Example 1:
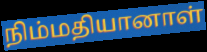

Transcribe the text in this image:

நிம்மதியானாள்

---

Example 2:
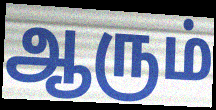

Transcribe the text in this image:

ஆரும்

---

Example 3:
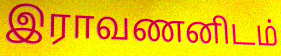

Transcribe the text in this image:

இராவணனிடம்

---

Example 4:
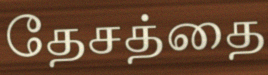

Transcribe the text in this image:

தேசத்தை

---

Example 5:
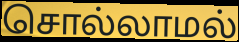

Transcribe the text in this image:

சொல்லாமல்